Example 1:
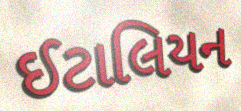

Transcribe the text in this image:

ઈટાલિયન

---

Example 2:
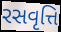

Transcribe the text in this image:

રસવૃત્તિ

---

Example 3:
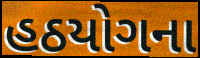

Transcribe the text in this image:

હઠયોગના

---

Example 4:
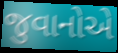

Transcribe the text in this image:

જુવાનોએ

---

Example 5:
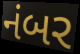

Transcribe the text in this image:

નંબર